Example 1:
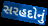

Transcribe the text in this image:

સરહદોનું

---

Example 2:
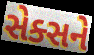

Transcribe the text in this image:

સેક્સને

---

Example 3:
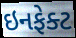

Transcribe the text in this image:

ઇનફેક્ટ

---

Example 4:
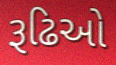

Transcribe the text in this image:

રૂઢિઓ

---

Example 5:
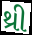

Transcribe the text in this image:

થ્રી